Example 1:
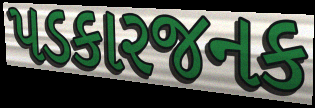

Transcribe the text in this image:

પડકારજનક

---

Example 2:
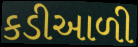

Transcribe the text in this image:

કડીઆળી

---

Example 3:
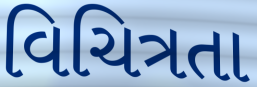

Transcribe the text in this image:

વિચિત્રતા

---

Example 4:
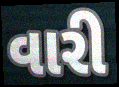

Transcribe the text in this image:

વારી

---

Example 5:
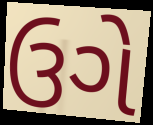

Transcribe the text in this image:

ઉગે